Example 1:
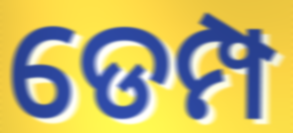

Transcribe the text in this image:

ଡେମ୍ପ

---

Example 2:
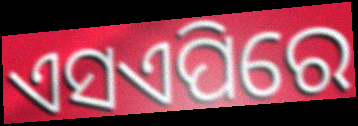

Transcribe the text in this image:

ଏସଏପିରେ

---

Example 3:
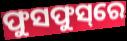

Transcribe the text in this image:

ଫୁସଫୁସ୍‌ରେ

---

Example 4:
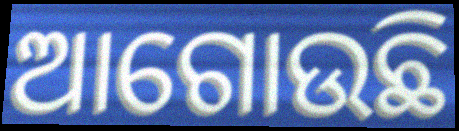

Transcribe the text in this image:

ଆଗୋଉଛି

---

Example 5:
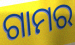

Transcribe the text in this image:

ଗାମର